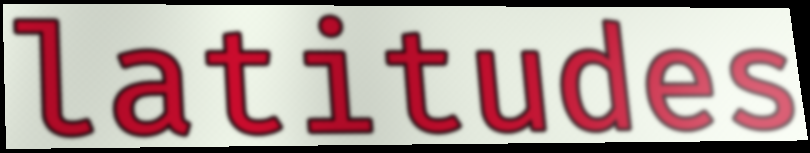
latitudes